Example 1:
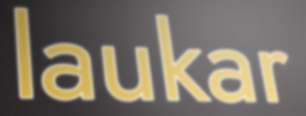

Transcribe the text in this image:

laukar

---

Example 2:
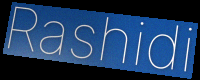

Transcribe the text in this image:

Rashidi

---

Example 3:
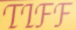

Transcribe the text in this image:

TIFF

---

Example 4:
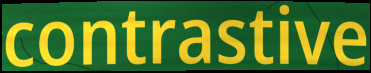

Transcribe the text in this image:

contrastive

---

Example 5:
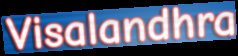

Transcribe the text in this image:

Visalandhra